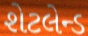
શેટલેન્ડ